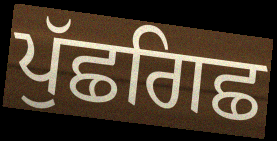
ਪੁੱਛਗਿਛ